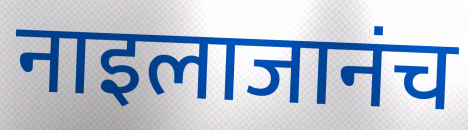
नाइलाजानंच